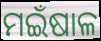
ମଇଁଷାଳ